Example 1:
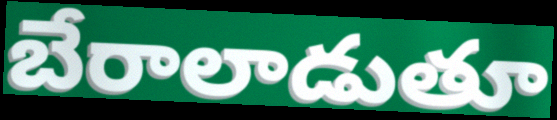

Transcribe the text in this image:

బేరాలాడుతూ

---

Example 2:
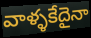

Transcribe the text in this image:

వాళ్ళకేదైనా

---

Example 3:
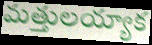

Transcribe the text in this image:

మత్తులయ్యాక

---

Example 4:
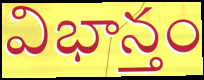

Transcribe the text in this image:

విభాన్తం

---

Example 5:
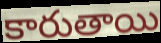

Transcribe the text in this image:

కారుతాయి